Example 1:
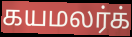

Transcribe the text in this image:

கயமலர்க்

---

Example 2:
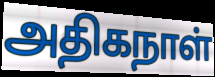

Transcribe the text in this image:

அதிகநாள்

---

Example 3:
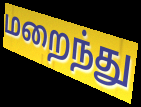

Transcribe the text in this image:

மறைந்து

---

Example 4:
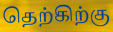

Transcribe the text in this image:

தெற்கிற்கு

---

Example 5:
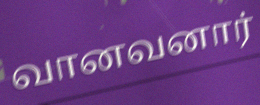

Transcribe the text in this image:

வானவனார்